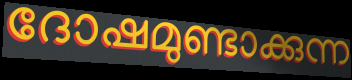
ദോഷമുണ്ടാക്കുന്ന